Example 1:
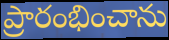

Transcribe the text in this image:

ప్రారంభించాను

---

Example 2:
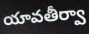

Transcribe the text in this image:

యావతీర్వా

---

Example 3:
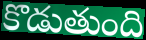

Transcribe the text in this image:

కొడుతుంది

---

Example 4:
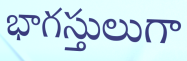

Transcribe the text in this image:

భాగస్తులుగా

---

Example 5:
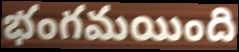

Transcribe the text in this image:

భంగమయింది